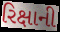
રિક્ષાની